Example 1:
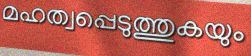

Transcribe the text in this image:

മഹത്വപ്പെടുത്തുകയും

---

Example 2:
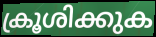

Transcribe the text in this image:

ക്രൂശിക്കുക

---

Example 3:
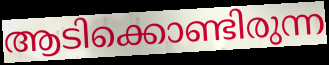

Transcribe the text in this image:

ആടിക്കൊണ്ടിരുന്ന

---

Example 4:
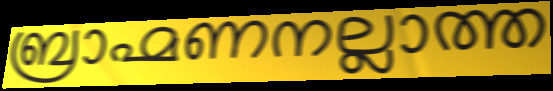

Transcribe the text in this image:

ബ്രാഹ്മണനല്ലാത്ത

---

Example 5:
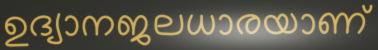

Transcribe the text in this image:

ഉദ്യാനജലധാരയാണ്